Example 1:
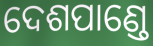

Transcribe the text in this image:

ଦେଶପାଣ୍ଡେ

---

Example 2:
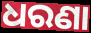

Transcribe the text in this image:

ଧରଣା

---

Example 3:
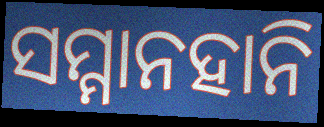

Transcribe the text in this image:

ସମ୍ମାନହାନି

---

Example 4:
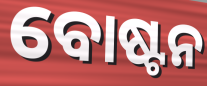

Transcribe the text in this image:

ବୋଷ୍ଟନ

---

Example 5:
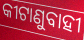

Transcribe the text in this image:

କୀଟାଣୁବାହୀ